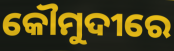
କୌମୁଦୀରେ